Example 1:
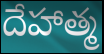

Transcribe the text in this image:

దేహాత్మ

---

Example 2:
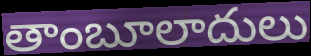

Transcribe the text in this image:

తాంబూలాదులు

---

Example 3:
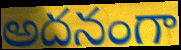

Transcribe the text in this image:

అదనంగా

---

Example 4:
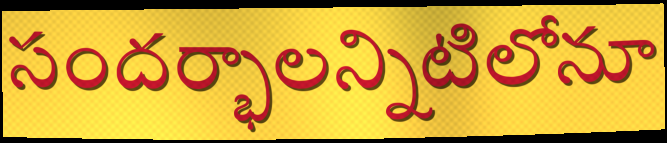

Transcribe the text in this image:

సందర్భాలన్నిటిలోనూ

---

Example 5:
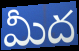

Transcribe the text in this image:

మీద